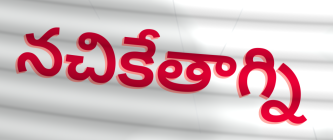
నచికేతాగ్ని